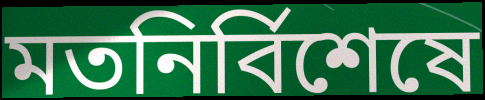
মতনির্বিশেষে